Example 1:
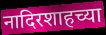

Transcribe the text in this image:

नादिरशाहच्या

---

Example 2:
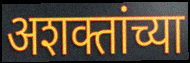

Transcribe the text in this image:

अशक्तांच्या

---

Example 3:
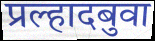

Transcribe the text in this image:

प्रल्हादबुवा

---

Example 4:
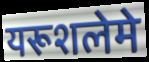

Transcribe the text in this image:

यरूशलेमे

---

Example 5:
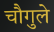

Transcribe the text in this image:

चौगुले